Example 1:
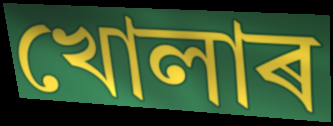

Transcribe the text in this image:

খোলাৰ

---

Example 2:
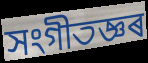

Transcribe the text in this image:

সংগীতজ্ঞৰ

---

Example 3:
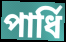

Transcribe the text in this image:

পাৰ্ধি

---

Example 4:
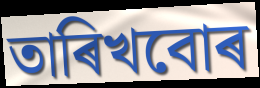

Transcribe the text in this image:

তাৰিখবোৰ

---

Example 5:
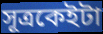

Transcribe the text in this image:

সূত্ৰকেইটা